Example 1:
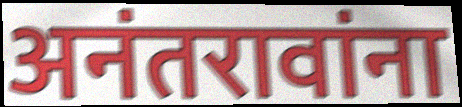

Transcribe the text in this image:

अनंतरावांना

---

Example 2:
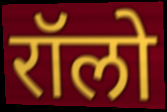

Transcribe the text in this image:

रॉलो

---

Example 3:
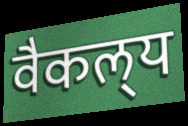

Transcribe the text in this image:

वैकल्य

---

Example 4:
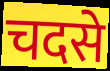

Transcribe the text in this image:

चदसे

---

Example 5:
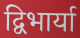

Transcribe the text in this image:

द्विभार्या